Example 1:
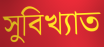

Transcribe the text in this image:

সুবিখ্যাত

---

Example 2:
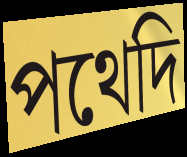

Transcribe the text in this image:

পথেদি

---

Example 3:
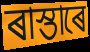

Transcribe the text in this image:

ৰাস্তাৰে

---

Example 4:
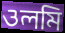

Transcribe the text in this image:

ওলমি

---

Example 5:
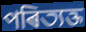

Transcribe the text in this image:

পৰিত্যক্ত